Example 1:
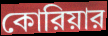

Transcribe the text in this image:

কোরিয়ার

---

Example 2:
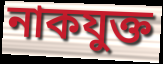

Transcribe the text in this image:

নাকযুক্ত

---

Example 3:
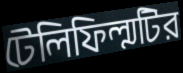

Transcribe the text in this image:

টেলিফিল্মটির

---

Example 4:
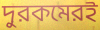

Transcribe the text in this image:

দুরকমেরই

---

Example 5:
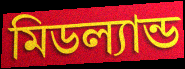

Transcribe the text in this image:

মিডল্যান্ড